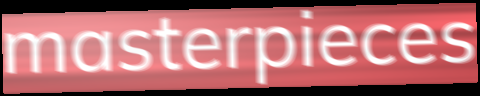
masterpieces